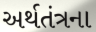
અર્થતંત્રના